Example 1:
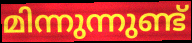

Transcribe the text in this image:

മിന്നുന്നുണ്ട്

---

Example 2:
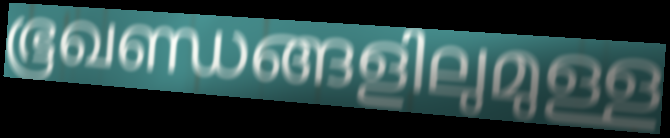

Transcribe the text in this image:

ഭൂഖണ്ഡങ്ങളിലുമുള്ള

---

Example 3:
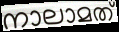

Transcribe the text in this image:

നാലാമത്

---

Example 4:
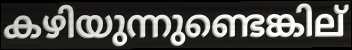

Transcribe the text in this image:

കഴിയുന്നുണ്ടെങ്കില്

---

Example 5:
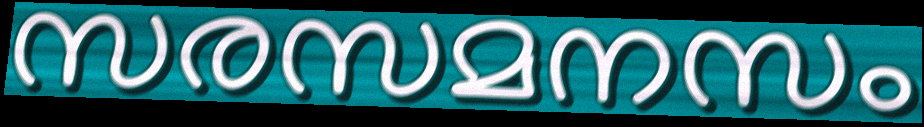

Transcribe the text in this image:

സരസമനസം